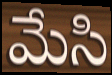
మేసి